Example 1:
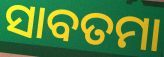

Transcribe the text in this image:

ସାବତମା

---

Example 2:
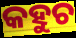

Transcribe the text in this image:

କହୁଚ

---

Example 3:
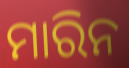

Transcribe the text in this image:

ମାରିନ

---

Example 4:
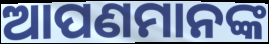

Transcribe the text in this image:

ଆପଣମାନଙ୍କ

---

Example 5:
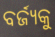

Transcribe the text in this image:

ବର୍ଜ୍ୟକୁ